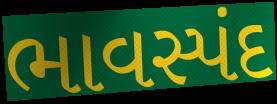
ભાવસ્પંદ